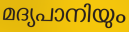
മദ്യപാനിയും